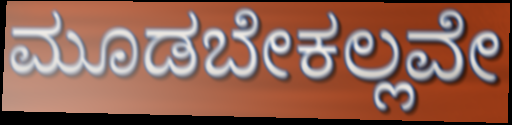
ಮೂಡಬೇಕಲ್ಲವೇ